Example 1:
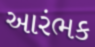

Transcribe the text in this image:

આરંભક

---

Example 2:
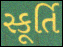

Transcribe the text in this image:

સ્કૂર્તિ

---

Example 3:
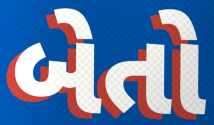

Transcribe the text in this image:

બેતો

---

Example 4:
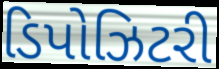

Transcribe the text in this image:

ડિપોઝિટરી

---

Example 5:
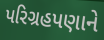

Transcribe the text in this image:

પરિગ્રહપણાને